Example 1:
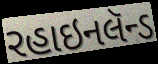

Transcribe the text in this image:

રહાઇનલૅન્ડ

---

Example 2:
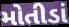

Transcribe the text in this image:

મોતીડાં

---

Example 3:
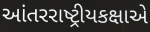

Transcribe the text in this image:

આંતરરાષ્ટ્રીયકક્ષાએ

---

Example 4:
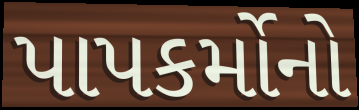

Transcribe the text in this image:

પાપકર્મોનો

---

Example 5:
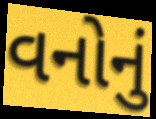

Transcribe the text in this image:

વનોનું